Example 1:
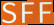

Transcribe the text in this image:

SFF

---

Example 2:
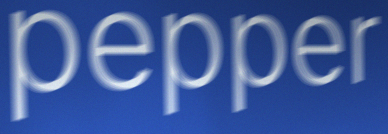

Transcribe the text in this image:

pepper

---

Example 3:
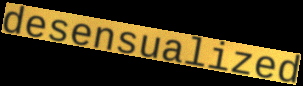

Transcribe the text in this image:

desensualized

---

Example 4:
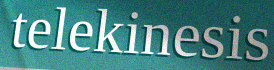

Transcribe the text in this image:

telekinesis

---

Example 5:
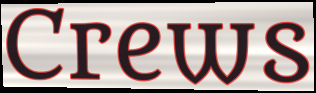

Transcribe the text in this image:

Crews